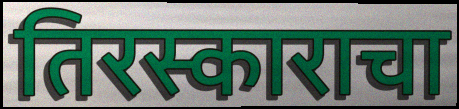
तिरस्काराचा